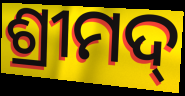
ଶ୍ରୀମଦ୍